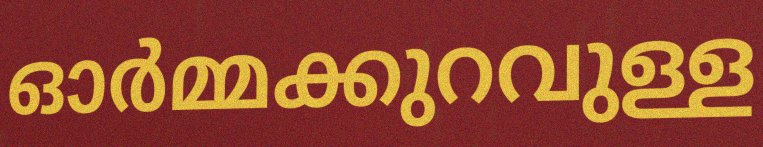
ഓർമ്മക്കുറവുള്ള